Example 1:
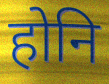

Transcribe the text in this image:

होनि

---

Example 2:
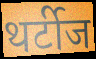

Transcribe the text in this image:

थर्टीज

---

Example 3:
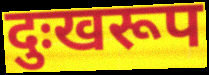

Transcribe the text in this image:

दुःखरूप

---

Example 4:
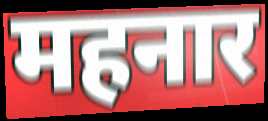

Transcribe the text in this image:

महनार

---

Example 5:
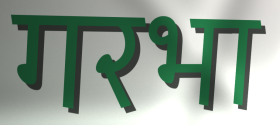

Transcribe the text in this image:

गरभा